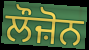
ਲੌਜ਼ੋਨ